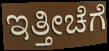
ಇತ್ತೀಚೆಗೆ